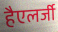
हैएलर्जी